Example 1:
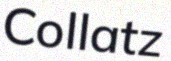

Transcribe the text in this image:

Collatz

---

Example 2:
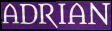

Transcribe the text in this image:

ADRIAN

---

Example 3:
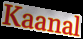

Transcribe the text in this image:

Kaanal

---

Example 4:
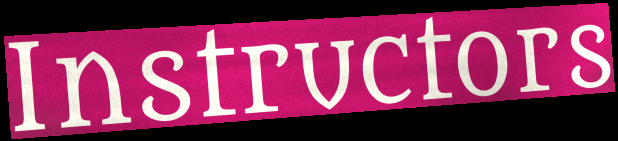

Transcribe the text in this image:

Instructors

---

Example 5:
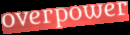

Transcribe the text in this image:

overpower